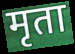
मृता